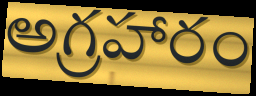
అగ్రహారం